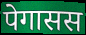
पेगासस